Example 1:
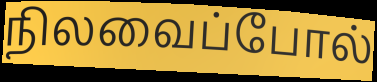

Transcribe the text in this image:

நிலவைப்போல்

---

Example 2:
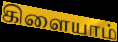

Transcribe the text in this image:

கிளையாம்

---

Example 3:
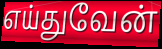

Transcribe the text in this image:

எய்துவேன்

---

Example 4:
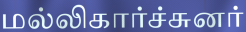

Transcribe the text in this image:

மல்லிகார்ச்சுனர்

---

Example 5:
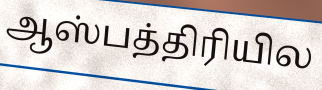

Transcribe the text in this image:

ஆஸ்பத்திரியில